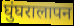
घुंघरालापन